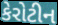
કેરોટીન